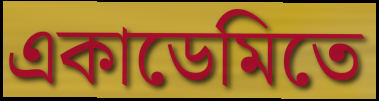
একাডেমিতে